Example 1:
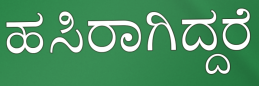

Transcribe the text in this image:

ಹಸಿರಾಗಿದ್ದರೆ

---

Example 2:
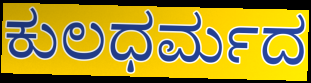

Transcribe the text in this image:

ಕುಲಧರ್ಮದ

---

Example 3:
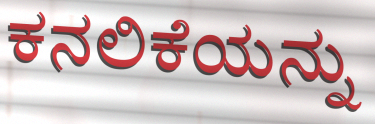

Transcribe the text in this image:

ಕನಲಿಕೆಯನ್ನು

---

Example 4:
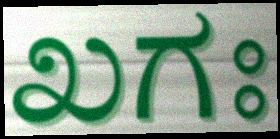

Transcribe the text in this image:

ಖಗಃ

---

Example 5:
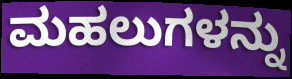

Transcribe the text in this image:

ಮಹಲುಗಳನ್ನು